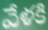
వేళకి